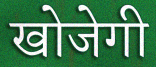
खोजेगी